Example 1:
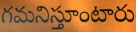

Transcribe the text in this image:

గమనిస్తూంటారు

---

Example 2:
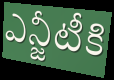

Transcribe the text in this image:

ఎన్జీటీకి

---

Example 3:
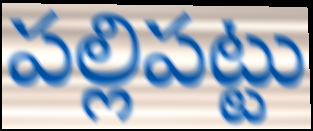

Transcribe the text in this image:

పల్లిపట్టు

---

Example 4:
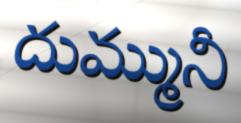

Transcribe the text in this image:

దుమ్మునీ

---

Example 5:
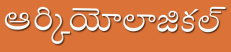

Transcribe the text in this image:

ఆర్కియోలాజికల్